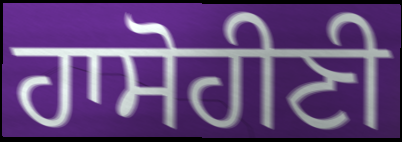
ਹਾਸੋਹੀਣੀ